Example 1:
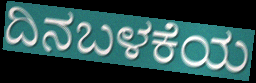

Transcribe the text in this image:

ದಿನಬಳಕೆಯ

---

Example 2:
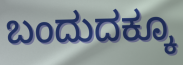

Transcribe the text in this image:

ಬಂದುದಕ್ಕೂ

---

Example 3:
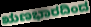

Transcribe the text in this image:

ಋಣಭಾರದಿಂದ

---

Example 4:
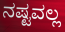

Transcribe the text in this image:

ನಷ್ಟವಲ್ಲ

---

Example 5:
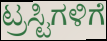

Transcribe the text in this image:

ಟ್ರಸ್ಟಿಗಳಿಗೆ